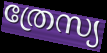
ത്രേസ്യ